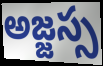
అజ్జస్స